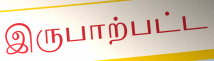
இருபாற்பட்ட